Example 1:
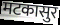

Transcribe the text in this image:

मटकासुर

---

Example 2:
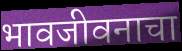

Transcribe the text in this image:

भावजीवनाचा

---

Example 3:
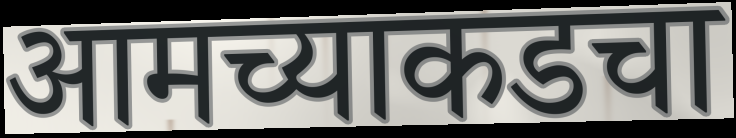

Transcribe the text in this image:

आमच्याकडचा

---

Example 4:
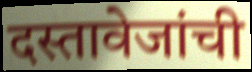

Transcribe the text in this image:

दस्तावेजांची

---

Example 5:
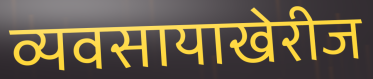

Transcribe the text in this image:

व्यवसायाखेरीज